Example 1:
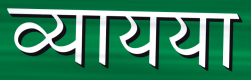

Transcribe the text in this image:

व्यायया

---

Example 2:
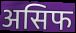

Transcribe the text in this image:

असिफ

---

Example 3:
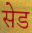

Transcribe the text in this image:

सेड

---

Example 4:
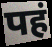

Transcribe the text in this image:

पहं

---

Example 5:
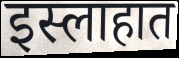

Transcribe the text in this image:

इस्लाहात